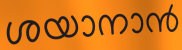
ശയാനാൻ